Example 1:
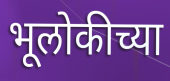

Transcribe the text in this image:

भूलोकीच्या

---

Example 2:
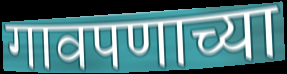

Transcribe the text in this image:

गावपणाच्या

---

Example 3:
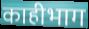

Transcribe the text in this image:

काहीभाग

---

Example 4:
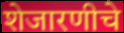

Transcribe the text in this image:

शेजारणीचे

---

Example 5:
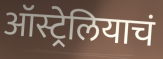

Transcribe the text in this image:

ऑस्ट्रेलियाचं